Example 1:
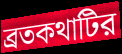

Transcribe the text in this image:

ব্রতকথাটির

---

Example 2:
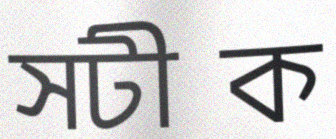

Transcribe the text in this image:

সটীক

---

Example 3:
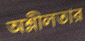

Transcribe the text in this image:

অশ্লীলতার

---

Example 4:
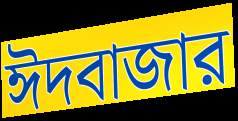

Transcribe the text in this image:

ঈদবাজার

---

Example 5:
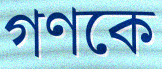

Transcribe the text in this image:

গণকে